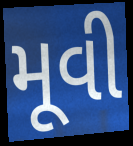
મૂવી